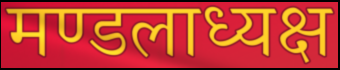
मण्डलाध्यक्ष